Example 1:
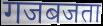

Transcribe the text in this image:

गजबजता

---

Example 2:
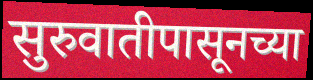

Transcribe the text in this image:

सुरुवातीपासूनच्या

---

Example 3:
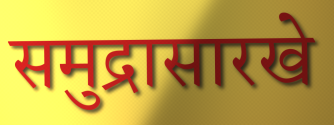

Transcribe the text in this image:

समुद्रासारखे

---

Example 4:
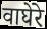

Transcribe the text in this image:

वाघेरे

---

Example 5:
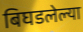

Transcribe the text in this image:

बिघडलेल्या